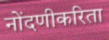
नोंदणीकरिता